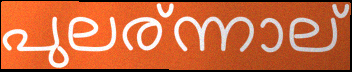
പുലര്ന്നാല്